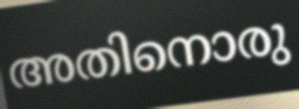
അതിനൊരു